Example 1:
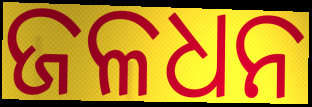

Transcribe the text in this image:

ଜଳଧନ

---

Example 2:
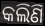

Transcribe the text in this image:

କଲିଣି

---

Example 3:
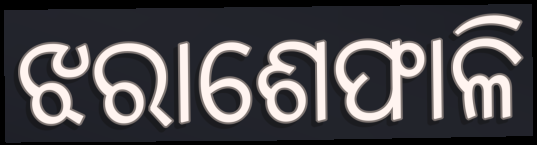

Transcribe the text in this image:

ଝରାଶେଫାଳି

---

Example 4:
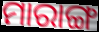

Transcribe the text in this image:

ମାରାଙ୍ଗ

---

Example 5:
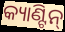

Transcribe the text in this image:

କ୍ୟାଣ୍ଟିନ୍